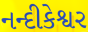
નન્દીકેશ્વર